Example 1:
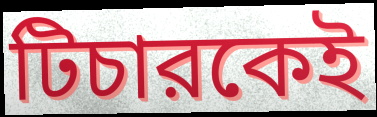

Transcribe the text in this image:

টিচারকেই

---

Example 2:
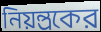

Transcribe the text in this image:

নিয়ন্ত্রকের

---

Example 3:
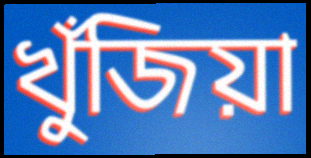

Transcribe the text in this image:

খুঁজিয়া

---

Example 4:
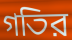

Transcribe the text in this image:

গতির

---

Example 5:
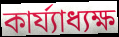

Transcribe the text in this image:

কার্য্যাধ্যক্ষ